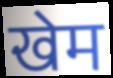
खेम